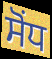
ਸੋਂਧ